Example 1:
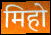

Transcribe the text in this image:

मिहो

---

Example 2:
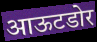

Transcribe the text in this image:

आऊटडोर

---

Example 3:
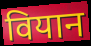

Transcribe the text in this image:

वियान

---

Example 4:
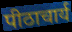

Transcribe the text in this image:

पीठाचार्य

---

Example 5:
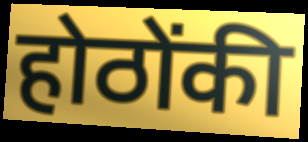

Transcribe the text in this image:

होठोंकी